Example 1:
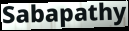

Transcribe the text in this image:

Sabapathy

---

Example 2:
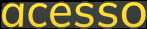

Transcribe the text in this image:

acesso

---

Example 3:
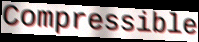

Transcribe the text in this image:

Compressible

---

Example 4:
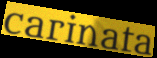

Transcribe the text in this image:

carinata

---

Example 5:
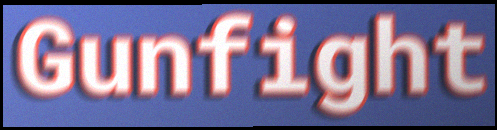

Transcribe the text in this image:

Gunfight